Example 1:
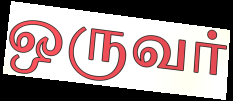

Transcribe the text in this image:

ஒருவர்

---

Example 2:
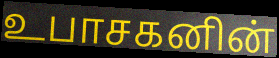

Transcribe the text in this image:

உபாசகனின்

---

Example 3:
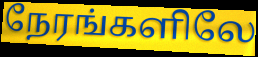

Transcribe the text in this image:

நேரங்களிலே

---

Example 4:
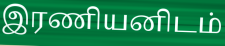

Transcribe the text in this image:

இரணியனிடம்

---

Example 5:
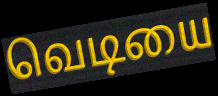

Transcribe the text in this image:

வெடியை